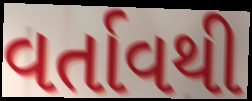
વર્તાવથી